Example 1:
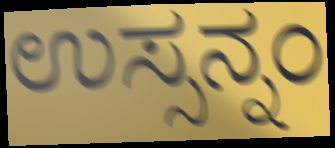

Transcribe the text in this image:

ಉಸ್ಸನ್ನಂ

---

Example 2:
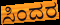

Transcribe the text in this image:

ಸಿಂದರ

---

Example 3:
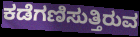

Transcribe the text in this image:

ಕಡೆಗಣಿಸುತ್ತಿರುವ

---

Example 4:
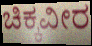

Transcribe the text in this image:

ಚಿಕ್ಕವೀರ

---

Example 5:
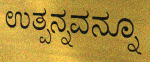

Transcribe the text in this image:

ಉತ್ಪನ್ನವನ್ನೂ